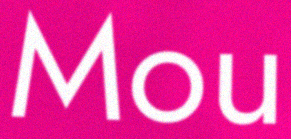
Mou